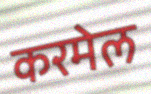
करमेल